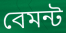
বেমন্ট